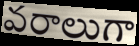
వరాలుగా